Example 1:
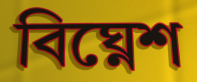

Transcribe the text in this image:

বিঘ্নেশ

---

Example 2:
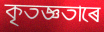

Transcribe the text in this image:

কৃতজ্ঞতাৰে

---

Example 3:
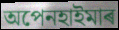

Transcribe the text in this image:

অপেনহাইমাৰ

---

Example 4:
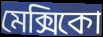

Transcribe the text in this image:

মেক্সিকো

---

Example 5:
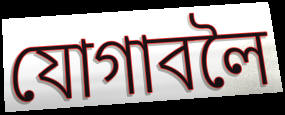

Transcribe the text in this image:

যোগাবলৈ